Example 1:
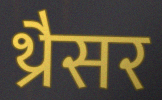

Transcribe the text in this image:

थ्रैसर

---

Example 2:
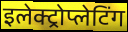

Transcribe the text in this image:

इलेक्ट्रोप्लेटिंग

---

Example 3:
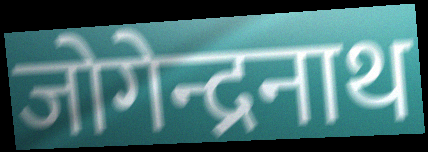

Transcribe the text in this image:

जोगेन्द्रनाथ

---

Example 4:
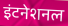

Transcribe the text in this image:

इंटनेशनल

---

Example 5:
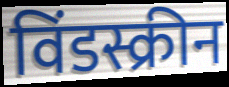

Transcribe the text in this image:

विंडस्क्रीन